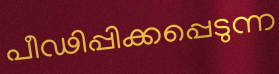
പീഢിപ്പിക്കപ്പെടുന്ന